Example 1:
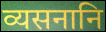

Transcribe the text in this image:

व्यसनानि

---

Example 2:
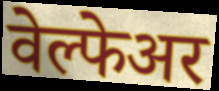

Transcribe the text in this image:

वेल्फेअर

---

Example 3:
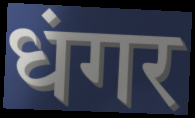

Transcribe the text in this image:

धंगर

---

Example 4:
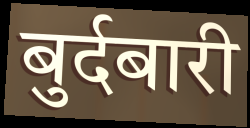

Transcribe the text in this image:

बुर्दबारी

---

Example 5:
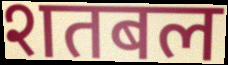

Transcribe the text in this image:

शतबल